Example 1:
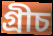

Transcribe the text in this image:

গ্ৰীচ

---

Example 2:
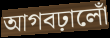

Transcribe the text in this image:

আগবঢ়ালোঁ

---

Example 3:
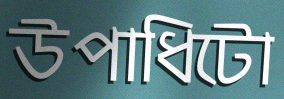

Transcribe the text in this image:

উপাধিটো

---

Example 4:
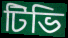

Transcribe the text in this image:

টিভি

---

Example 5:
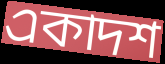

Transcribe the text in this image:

একাদশ